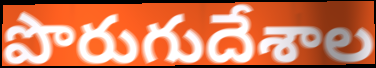
పొరుగుదేశాల